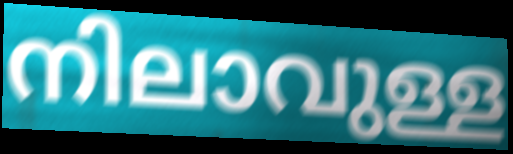
നിലാവുള്ള